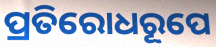
ପ୍ରତିରୋଧରୂପେ